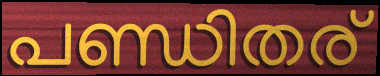
പണ്ഡിതര്